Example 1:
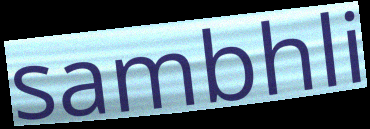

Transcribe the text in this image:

sambhli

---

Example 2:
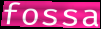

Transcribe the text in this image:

fossa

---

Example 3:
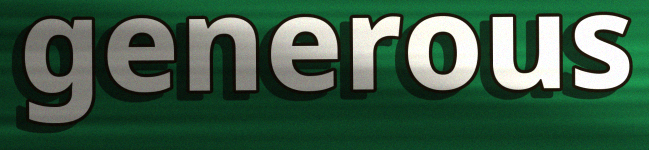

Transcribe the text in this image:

generous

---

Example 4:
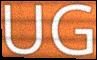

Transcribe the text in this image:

UG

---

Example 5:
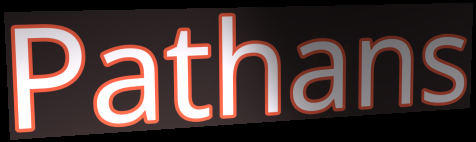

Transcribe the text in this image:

Pathans